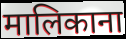
मालिकाना